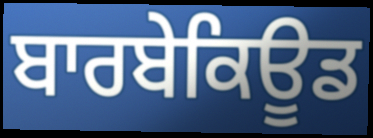
ਬਾਰਬੇਕਿਊਡ